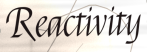
Reactivity